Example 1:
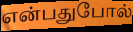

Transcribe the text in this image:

என்பதுபோல்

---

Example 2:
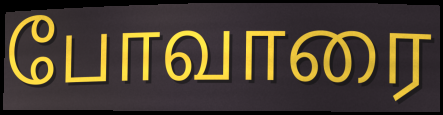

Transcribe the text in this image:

போவாரை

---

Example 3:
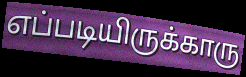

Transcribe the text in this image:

எப்படியிருக்காரு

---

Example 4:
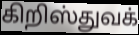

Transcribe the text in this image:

கிறிஸ்துவக்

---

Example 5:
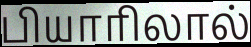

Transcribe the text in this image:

பியாரிலால்